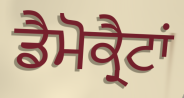
ਡੈਮੋਕ੍ਰੈਟਾਂ